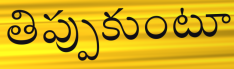
తిప్పుకుంటూ